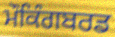
ਮੌਕਿੰਗਬਰਡ